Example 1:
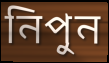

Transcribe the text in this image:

নিপুন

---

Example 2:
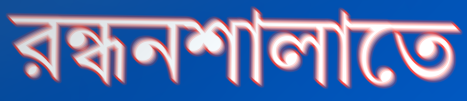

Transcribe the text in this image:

রন্ধনশালাতে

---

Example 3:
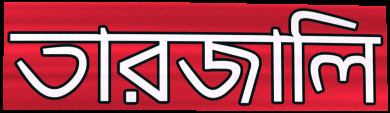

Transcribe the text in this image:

তারজালি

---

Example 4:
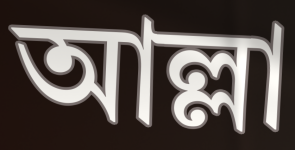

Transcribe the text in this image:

আল্লা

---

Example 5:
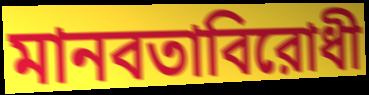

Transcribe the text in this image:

মানবতাবিরোধী